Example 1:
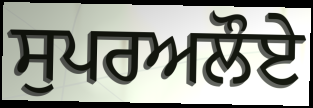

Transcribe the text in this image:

ਸੁਪਰਅਲੌਏ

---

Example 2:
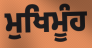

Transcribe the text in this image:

ਮੁਖਿਮੂੰਹ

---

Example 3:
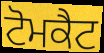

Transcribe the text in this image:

ਟੋਮਕੈਟ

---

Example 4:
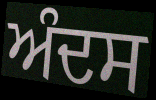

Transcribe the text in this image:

ਅੰਦਸ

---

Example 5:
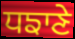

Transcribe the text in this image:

ਧਙਾਣੇ